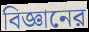
বিজ্ঞানের